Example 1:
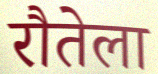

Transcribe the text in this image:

रौतेला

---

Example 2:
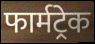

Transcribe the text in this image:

फार्मट्रेक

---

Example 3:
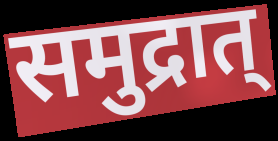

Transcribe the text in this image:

समुद्रात्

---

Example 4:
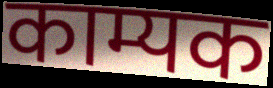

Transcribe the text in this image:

काम्यक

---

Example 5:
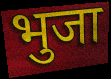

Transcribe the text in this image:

भुजा